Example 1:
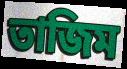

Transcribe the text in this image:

তাজিম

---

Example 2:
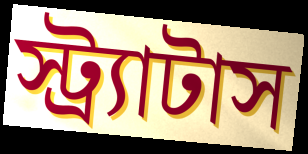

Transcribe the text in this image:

স্ট্র্যাটাস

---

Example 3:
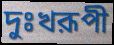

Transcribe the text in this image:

দুঃখরূপী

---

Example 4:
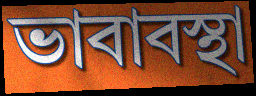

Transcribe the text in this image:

ভাবাবস্থা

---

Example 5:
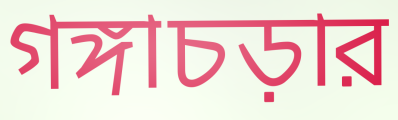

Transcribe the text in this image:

গঙ্গাচড়ার